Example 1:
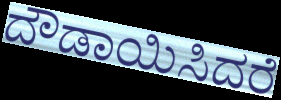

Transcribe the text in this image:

ದೌಡಾಯಿಸಿದರೆ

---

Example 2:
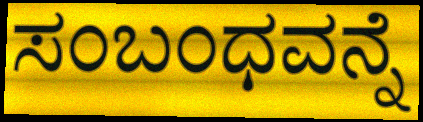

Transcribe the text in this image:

ಸಂಬಂಧವನ್ನೆ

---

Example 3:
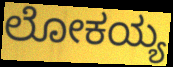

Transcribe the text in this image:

ಲೋಕಯ್ಯ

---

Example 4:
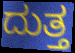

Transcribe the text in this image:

ದುತ್ತ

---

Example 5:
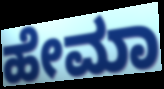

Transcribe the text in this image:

ಹೇಮಾ